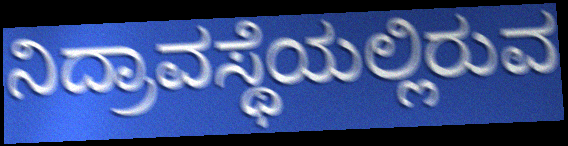
ನಿದ್ರಾವಸ್ಥೆಯಲ್ಲಿರುವ